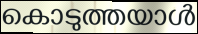
കൊടുത്തയാൾ